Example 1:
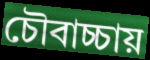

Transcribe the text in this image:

চৌবাচ্চায়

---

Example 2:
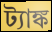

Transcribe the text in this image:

ট্যাঙ্ক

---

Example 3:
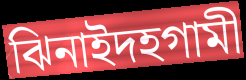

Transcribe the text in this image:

ঝিনাইদহগামী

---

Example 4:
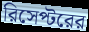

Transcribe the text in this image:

রিসেপ্টরের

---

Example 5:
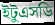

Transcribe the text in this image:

ইটুএসডি